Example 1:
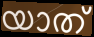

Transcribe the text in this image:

യാത്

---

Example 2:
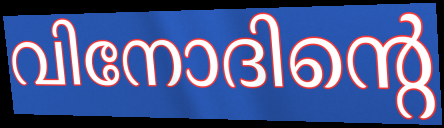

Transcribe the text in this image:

വിനോദിന്റെ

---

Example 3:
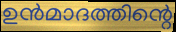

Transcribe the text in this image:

ഉൻമാദത്തിന്റെ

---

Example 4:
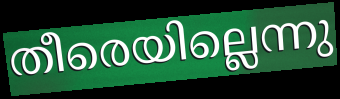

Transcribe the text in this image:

തീരെയില്ലെന്നു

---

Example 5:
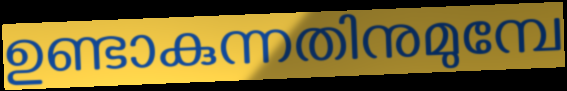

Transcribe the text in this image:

ഉണ്ടാകുന്നതിനുമുമ്പേ